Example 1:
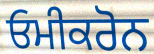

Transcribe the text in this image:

ਓਮੀਕਰੋਨ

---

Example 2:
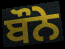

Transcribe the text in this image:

ਬੌਨੇ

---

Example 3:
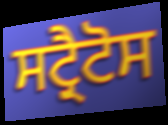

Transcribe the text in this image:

ਸਟ੍ਰੈਟੋਸ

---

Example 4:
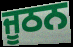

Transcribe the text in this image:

ਜੂਠਨ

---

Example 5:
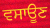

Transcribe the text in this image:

ਵਸਾਊਣ